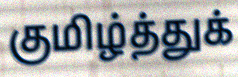
குமிழ்த்துக்